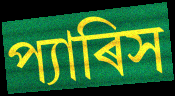
প্যাৰিস